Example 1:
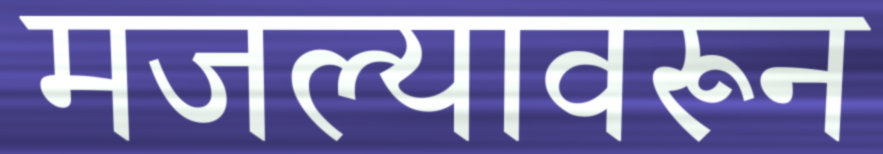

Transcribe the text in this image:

मजल्यावरून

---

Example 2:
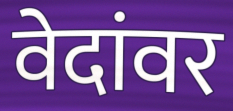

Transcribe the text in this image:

वेदांवर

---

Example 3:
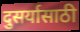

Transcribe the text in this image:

दुसर्यासाठी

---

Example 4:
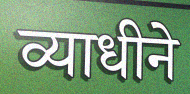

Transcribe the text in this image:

व्याधीने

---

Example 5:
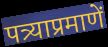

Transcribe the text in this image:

पत्र्याप्रमाणें